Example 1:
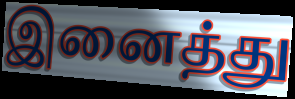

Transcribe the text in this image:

இனைத்து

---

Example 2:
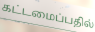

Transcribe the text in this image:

கட்டமைப்பதில்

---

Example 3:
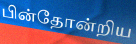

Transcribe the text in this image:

பின்தோன்றிய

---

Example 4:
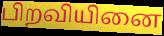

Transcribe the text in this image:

பிறவியினை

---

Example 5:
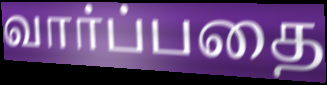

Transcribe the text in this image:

வார்ப்பதை